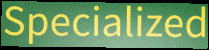
Specialized